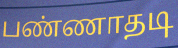
பண்ணாதடி